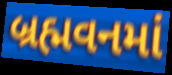
બ્રહ્મવનમાં